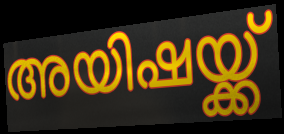
അയിഷയ്ക്ക്